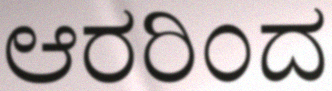
ಆರರಿಂದ